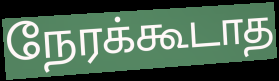
நேரக்கூடாத